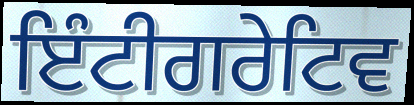
ਇੰਟੀਗਰੇਟਿਵ